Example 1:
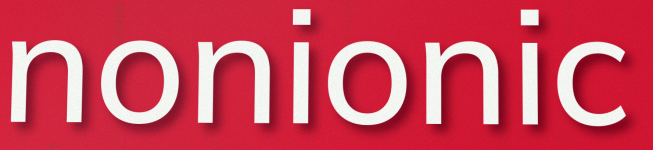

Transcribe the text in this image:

nonionic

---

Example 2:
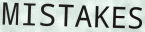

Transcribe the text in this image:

MISTAKES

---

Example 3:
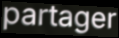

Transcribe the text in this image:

partager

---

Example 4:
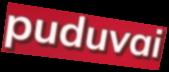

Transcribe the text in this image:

puduvai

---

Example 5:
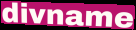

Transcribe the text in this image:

divname